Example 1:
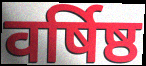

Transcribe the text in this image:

वर्षिष्ठ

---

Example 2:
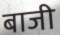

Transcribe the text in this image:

बाजी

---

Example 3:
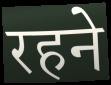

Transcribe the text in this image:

रहने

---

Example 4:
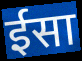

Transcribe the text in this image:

ईसा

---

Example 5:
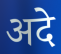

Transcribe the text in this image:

अदे